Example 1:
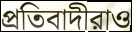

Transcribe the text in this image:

প্রতিবাদীরাও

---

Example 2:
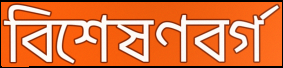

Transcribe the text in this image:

বিশেষণবর্গ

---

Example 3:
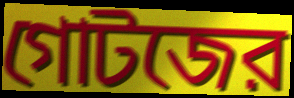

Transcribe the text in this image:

গোটজের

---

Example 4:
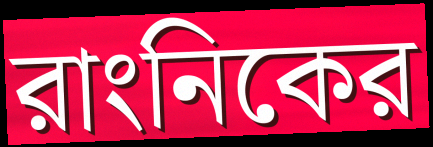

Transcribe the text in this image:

রাংনিকের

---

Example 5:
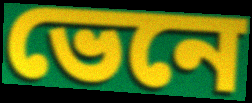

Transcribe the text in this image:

ভেনে